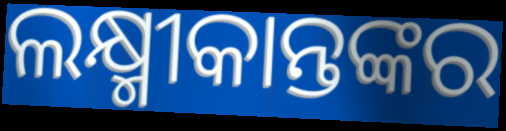
ଲକ୍ଷ୍ମୀକାନ୍ତଙ୍କର